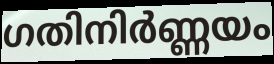
ഗതിനിർണ്ണയം